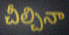
చీల్చినా